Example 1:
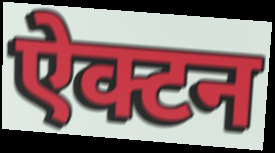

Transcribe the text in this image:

ऐक्टन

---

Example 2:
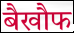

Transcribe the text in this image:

बैखौफ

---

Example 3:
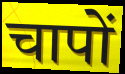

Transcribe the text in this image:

चापों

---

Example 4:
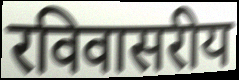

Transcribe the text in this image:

रविवासरीय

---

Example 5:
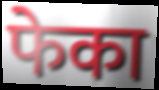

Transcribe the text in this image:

फेका